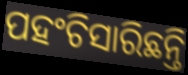
ପହଂଚିସାରିଛନ୍ତି